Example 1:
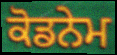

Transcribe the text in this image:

ਕੋਡਨੇਮ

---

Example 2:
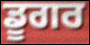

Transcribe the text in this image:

ਡੂਗਰ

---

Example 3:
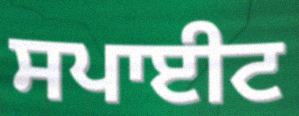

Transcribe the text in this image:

ਸਪਾਈਟ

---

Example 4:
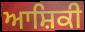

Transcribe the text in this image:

ਆਸ਼ਿਕੀ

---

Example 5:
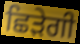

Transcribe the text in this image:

ਛਿੜੇਗੀ